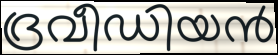
ദ്രവീഡിയൻ